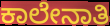
ಕಾಲೇನಾತಿ